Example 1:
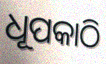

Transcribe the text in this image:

ଧୂପକାଠି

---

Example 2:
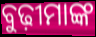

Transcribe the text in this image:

ବୁଢ଼ୀମାଙ୍କ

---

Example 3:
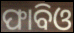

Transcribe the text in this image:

ଫାବିଓ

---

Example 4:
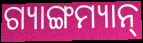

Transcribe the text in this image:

ଗ୍ୟାଙ୍ଗମ୍ୟାନ୍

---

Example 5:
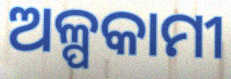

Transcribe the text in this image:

ଅଳ୍ପକାମୀ